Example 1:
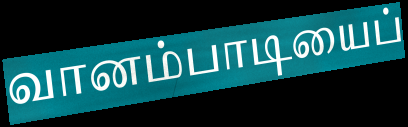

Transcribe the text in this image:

வானம்பாடியைப்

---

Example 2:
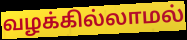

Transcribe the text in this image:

வழக்கில்லாமல்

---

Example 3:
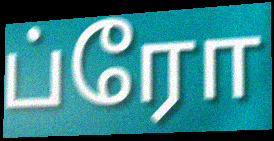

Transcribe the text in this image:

ப்ரோ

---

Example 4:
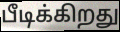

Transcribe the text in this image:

பீடிக்கிறது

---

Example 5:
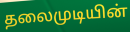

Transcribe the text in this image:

தலைமுடியின்